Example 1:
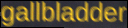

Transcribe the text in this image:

gallbladder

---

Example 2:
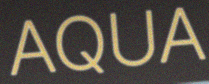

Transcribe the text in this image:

AQUA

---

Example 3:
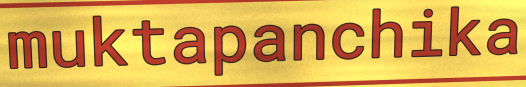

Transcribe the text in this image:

muktapanchika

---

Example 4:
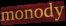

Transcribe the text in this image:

monody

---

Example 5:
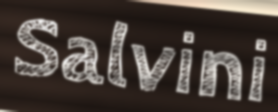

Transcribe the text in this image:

Salvini